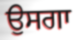
ਉਸਗਾ